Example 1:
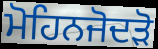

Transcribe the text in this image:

ਮੋਹਿਨਜੋਦੜੋ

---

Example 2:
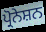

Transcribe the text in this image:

ਪ੍ਰੋਨੇਸ਼ਨ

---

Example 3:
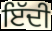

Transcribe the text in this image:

ਇੱਦੀ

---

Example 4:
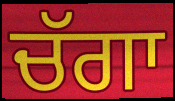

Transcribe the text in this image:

ਚੱਗਾ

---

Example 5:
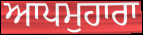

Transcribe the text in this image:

ਆਪਮੁਹਾਰਾ